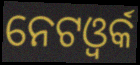
ନେଟଓ୍ବର୍କ